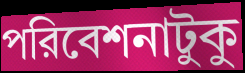
পরিবেশনাটুকু